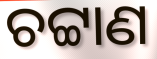
ଚଟ୍ଟାଣ